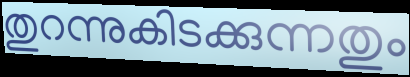
തുറന്നുകിടക്കുന്നതും